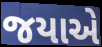
જયાએ